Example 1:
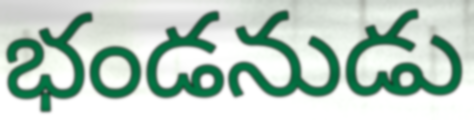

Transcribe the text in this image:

భండనుడు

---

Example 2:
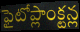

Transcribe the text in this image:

ఫైటోప్లాంక్టన్ల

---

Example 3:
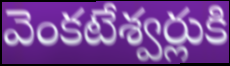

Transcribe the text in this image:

వెంకటేశ్వర్లుకి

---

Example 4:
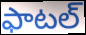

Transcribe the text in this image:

ఫాటల్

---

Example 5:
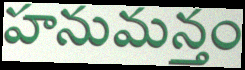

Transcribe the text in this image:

హనుమన్తం